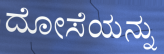
ದೋಸೆಯನ್ನು